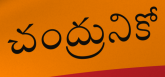
చంద్రునికో